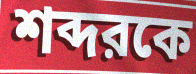
শব্দরকে